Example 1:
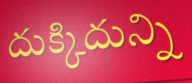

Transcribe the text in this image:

దుక్కిదున్ని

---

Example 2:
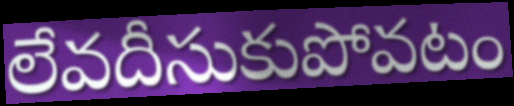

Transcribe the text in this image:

లేవదీసుకుపోవటం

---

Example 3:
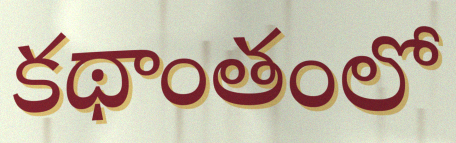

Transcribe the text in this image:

కథాంతంలో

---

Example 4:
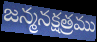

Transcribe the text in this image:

జన్మనక్షత్రము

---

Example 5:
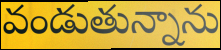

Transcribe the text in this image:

వండుతున్నాను